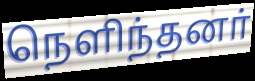
நெளிந்தனர்